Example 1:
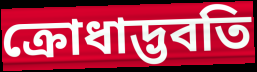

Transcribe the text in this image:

ক্রোধাদ্ভবতি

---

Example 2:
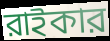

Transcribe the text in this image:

রাইকার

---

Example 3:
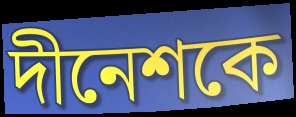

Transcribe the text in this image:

দীনেশকে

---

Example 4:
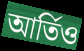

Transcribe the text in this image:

আর্তিও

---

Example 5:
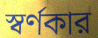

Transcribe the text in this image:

স্বর্ণকার